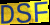
DSF